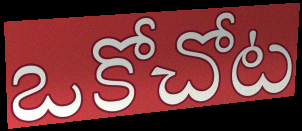
ఒకోచోట